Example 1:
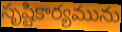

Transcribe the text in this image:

సృష్టికార్యమును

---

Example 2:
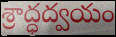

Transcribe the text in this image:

శ్రాద్ధద్వయం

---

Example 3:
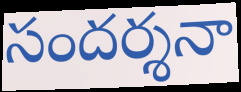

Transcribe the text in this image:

సందర్శనా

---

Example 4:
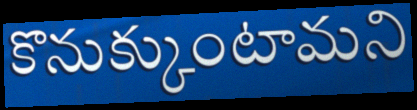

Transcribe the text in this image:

కొనుక్కుంటామని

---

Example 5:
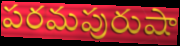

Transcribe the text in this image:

పరమపురుషా